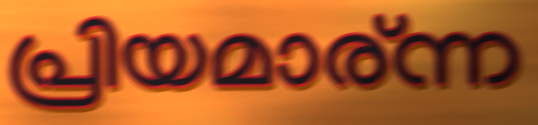
പ്രിയമാര്ന്ന